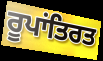
ਰੂਪਾਂਤਿਰਤ